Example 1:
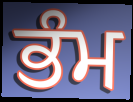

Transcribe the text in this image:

ਭੰਮ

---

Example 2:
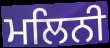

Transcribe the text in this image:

ਮਲਿਨੀ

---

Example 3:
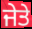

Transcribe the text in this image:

ਜੇਤੇ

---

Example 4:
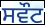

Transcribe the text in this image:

ਸਵੌਟ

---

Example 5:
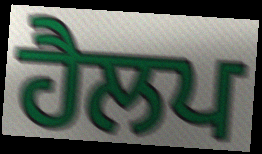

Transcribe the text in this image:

ਹੈਲਪ